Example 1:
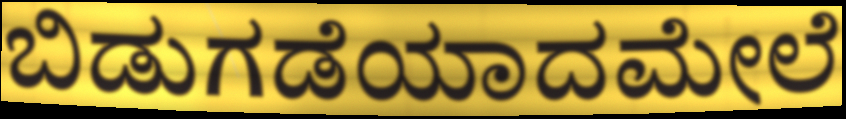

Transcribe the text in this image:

ಬಿಡುಗಡೆಯಾದಮೇಲೆ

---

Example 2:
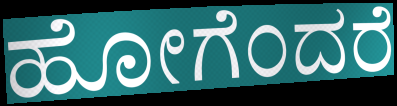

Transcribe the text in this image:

ಹೋಗೆಂದರೆ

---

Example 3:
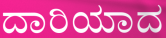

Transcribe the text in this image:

ದಾರಿಯಾದ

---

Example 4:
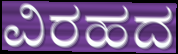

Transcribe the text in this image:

ವಿರಹದ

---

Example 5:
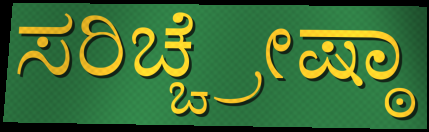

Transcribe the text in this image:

ಸರಿಚ್ಚ್ರೇಷ್ಠಾ